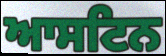
ਆਸਟਿਨ